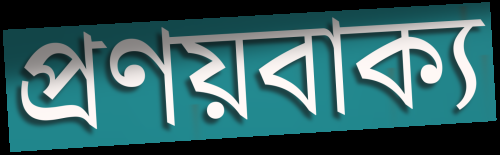
প্রণয়বাক্য